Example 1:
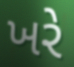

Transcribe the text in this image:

ખરે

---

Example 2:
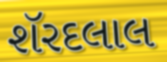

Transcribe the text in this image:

શૅરદલાલ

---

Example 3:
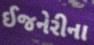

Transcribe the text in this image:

ઈજનેરીના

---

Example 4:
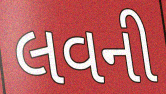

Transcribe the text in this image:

લવની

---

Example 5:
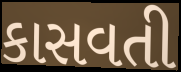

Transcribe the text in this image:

કાસવતી